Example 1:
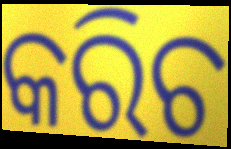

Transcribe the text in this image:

କରିଚ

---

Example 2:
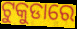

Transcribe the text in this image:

ଟୁକୁଡାରେ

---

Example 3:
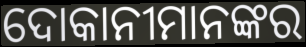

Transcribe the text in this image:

ଦୋକାନୀମାନଙ୍କର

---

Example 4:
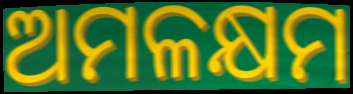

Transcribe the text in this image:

ଅମଳକ୍ଷମ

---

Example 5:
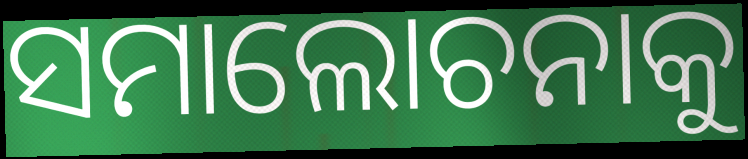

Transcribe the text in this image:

ସମାଲୋଚନାକୁ